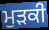
ਮੁੜਕੀ